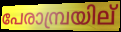
പേരാമ്പ്രയില്